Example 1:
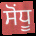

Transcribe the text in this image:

ਸੋਂਧੂ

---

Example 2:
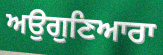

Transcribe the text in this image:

ਅਉਗੁਣਿਆਰਾ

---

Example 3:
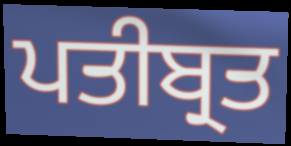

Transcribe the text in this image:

ਪਤੀਬ੍ਰਤ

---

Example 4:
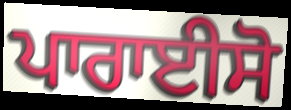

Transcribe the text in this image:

ਪਾਰਾਈਸੋ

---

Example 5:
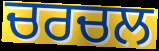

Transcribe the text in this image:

ਚਰਚਲ